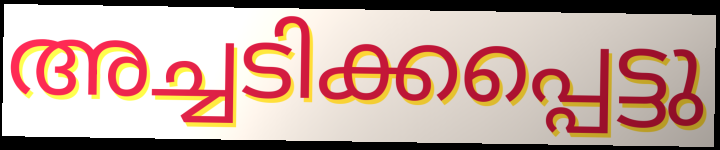
അച്ചടിക്കപ്പെട്ടു